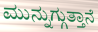
ಮುನ್ನುಗ್ಗುತ್ತಾನೆ